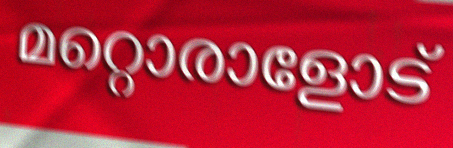
മറ്റൊരാളോട്